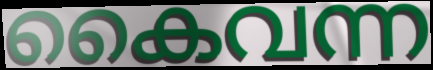
കൈവന്ന